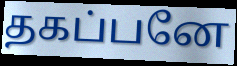
தகப்பனே